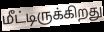
மீட்டிருக்கிறது